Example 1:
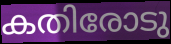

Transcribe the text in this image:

കതിരോടു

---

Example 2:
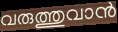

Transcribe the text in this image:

വരുത്തുവാൻ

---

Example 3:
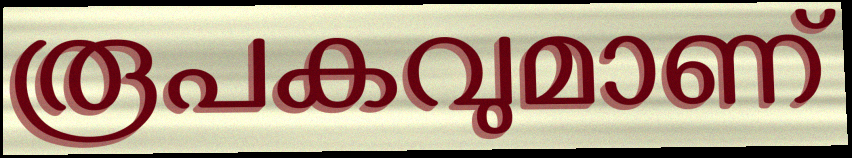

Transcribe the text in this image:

രൂപകവുമാണ്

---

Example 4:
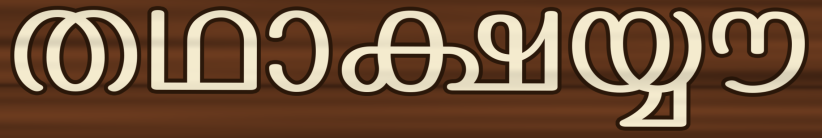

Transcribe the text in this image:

തഥാക്ഷയ്യൗ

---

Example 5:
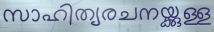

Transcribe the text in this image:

സാഹിത്യരചനയ്ക്കുള്ള